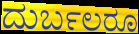
ದುರ್ಬಲರೂ